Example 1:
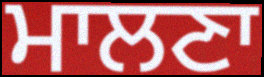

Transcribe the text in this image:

ਮਾਲਣਾ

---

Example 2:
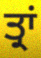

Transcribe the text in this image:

ਤ੍ਰਾਂ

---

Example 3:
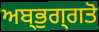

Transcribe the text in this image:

ਅਬ੍ਭੁਗ੍ਗਤੋ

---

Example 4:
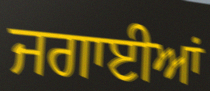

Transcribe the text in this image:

ਜਗਾਈਆਂ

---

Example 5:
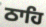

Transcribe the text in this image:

ਠਾਹਿ